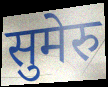
सुमेरु